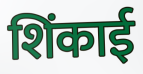
शिंकाई